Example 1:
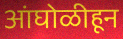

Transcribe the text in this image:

आंघोळीहून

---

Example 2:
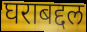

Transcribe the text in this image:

घराबद्दल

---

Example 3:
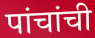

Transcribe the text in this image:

पांचांची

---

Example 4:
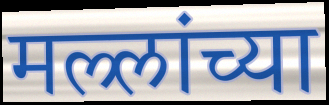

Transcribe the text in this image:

मल्लांच्या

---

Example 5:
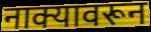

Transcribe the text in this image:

नाक्यावरून